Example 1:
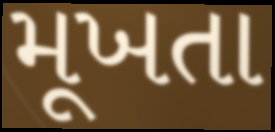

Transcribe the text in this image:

મૂખતા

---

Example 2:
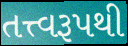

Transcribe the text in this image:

તત્ત્વરૂપથી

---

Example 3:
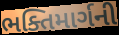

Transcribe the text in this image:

ભક્તિમાર્ગની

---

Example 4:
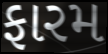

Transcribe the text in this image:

ફારમ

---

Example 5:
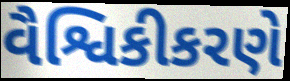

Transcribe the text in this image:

વૈશ્વિકીકરણે